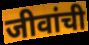
जीवांची